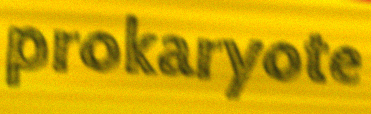
prokaryote